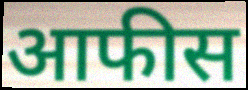
आफीस